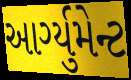
આર્ગ્યુમેન્ટ